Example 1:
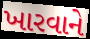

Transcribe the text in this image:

ખારવાને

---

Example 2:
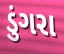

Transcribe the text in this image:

ડુંગરા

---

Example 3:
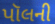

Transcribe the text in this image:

પૉલની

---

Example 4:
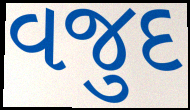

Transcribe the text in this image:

વજુદ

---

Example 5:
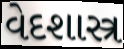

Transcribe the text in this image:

વેદશાસ્ત્ર